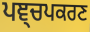
ਪਞ੍ਚਪਕਰਣ